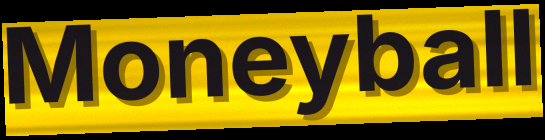
Moneyball